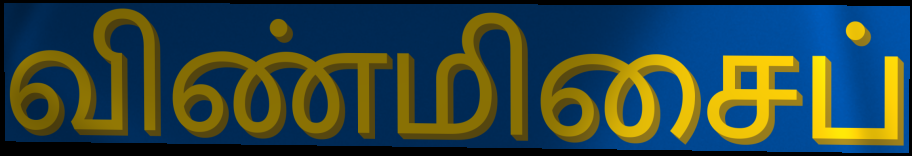
விண்மிசைப்